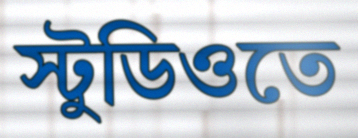
স্টুডিওতে